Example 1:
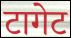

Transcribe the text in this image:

टागेट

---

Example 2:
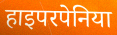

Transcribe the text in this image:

हाइपरपेनिया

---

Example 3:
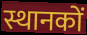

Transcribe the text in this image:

स्थानकों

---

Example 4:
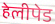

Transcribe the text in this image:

हेलीपेड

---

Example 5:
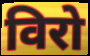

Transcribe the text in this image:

विरो